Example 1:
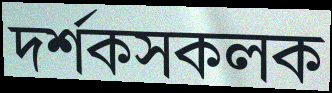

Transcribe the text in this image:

দৰ্শকসকলক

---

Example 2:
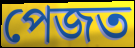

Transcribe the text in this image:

পেজত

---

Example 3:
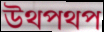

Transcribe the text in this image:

উথপথপ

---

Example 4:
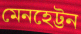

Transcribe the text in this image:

মেনহেট্টন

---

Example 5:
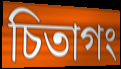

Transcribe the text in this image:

চিতাগং